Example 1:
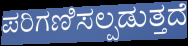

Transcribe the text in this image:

ಪರಿಗಣಿಸಲ್ಪಡುತ್ತದೆ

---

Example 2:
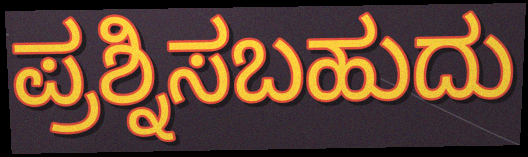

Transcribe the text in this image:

ಪ್ರಶ್ನಿಸಬಹುದು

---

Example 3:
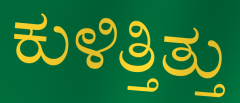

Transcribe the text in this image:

ಕುಳಿತ್ತಿತ್ತು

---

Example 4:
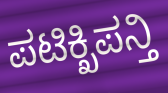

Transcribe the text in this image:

ಪಟಿಕ್ಖಿಪನ್ತಿ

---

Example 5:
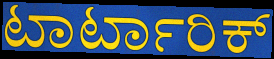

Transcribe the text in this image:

ಟಾರ್ಟಾರಿಕ್